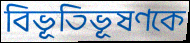
বিভূতিভূষণকে